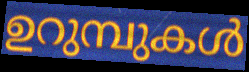
ഉറുമ്പുകൾ